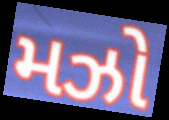
મઝો